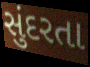
સુંદરતા